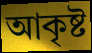
আকৃষ্ট